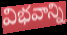
విభవాన్ని